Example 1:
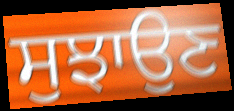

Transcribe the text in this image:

ਸੁਝਾਉਣ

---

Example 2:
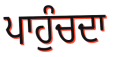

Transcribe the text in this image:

ਪਾਹੁੰਚਦਾ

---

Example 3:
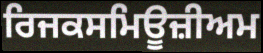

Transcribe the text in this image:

ਰਿਜਕਸਮਿਊਜ਼ੀਅਮ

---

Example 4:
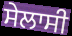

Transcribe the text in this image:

ਸੇਲਾਸੀ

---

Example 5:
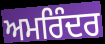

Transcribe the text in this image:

ਅਮਰਿੰਦਰ